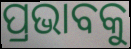
ପ୍ରଭାବକୁ